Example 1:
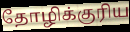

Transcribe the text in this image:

தோழிக்குரிய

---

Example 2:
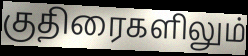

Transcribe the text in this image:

குதிரைகளிலும்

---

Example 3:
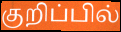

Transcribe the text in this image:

குறிப்பில்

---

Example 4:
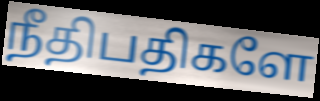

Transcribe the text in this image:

நீதிபதிகளே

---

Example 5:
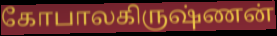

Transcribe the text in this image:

கோபாலகிருஷ்ணன்